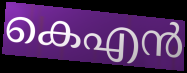
കെഎൻ